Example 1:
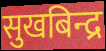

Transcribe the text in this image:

सुखबिन्द्र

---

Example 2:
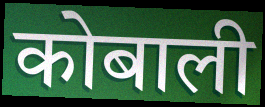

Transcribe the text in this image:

कोबाली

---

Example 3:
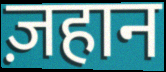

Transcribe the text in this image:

ज़हान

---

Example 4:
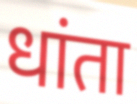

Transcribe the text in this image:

धांता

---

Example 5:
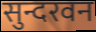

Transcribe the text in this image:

सुन्दरवन